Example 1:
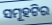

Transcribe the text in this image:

ସମୂହଟିର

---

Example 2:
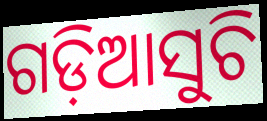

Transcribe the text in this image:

ଗଡ଼ିଆସୁଚି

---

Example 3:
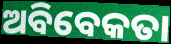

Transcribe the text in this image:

ଅବିବେକତା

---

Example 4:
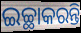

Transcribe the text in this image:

ଇଚ୍ଛାକରନ୍ତି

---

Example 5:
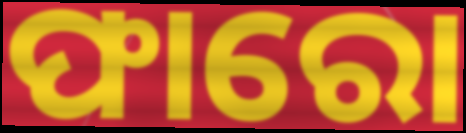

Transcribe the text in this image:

ଫାରୋ